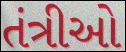
તંત્રીઓ